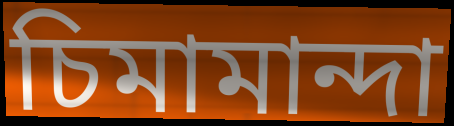
চিমামান্দা